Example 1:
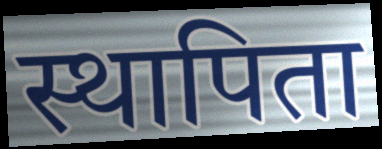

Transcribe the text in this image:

स्थापिता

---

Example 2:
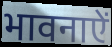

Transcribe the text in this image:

भावनाऐं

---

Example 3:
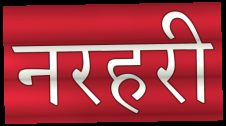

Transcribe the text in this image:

नरहरी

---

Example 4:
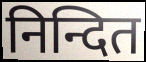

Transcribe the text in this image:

निन्दित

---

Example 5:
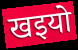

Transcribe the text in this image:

खइयो